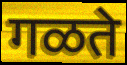
गळते